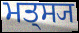
ਮਤ੍ਸ੍ਯ